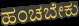
ಹಂಚಬೇಕು